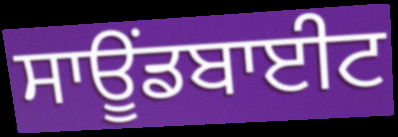
ਸਾਊਂਡਬਾਈਟ